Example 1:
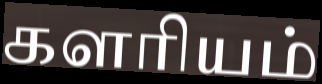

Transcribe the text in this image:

களரியம்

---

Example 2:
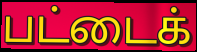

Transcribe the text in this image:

பட்டைக்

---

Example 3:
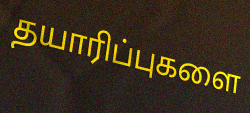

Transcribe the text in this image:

தயாரிப்புகளை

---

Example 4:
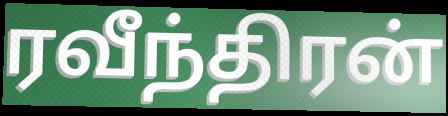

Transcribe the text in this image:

ரவீந்திரன்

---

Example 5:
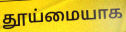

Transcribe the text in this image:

தூய்மையாக